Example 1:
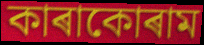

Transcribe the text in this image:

কাৰাকোৰাম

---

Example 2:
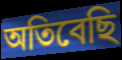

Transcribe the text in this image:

অতিবেছি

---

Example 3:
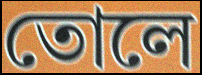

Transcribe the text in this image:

তোলে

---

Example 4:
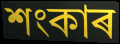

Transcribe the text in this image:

শংকাৰ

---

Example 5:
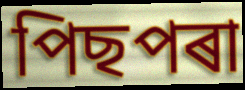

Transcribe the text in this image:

পিছপৰা